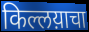
किल्लय़ाचा